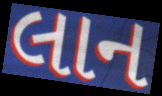
લાન